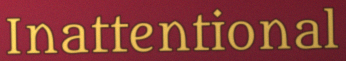
Inattentional